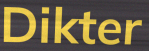
Dikter